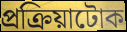
প্ৰক্ৰিয়াটোক